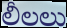
లీలలు